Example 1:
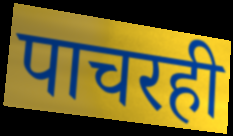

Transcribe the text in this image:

पाचरही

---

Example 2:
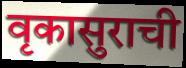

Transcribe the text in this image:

वृकासुराची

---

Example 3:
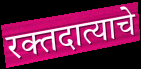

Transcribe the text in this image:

रक्तदात्याचे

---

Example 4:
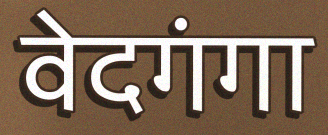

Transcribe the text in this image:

वेदगंगा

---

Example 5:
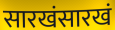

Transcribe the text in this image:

सारखंसारखं